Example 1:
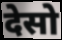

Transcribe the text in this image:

देसो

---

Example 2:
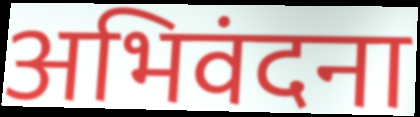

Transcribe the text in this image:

अभिवंदना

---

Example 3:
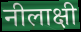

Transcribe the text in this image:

नीलाक्षी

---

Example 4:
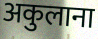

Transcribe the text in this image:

अकुलाना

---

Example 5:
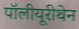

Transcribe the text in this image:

पॉलीयूरीथेन